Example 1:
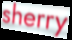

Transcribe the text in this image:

sherry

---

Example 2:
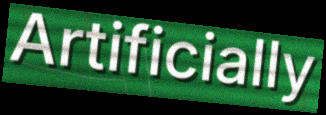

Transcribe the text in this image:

Artificially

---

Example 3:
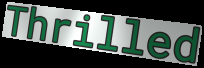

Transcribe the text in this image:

Thrilled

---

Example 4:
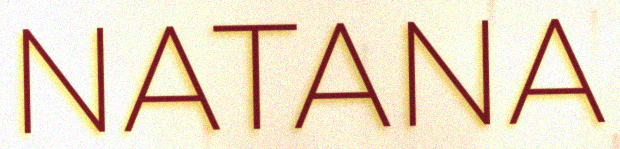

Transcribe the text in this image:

NATANA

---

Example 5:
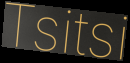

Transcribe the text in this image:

Tsitsi